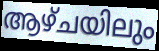
ആഴ്ചയിലും